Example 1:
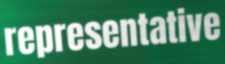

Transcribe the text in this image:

representative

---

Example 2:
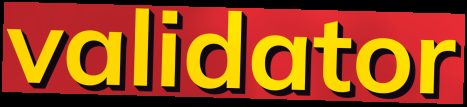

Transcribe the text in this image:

validator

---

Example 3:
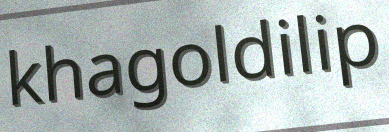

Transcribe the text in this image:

khagoldilip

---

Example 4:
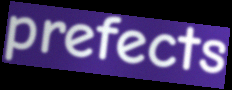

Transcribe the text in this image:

prefects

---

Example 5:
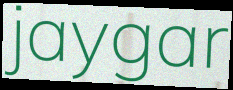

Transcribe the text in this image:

jaygar